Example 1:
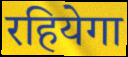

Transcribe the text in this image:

रहियेगा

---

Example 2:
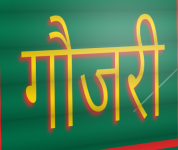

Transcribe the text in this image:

गौजरी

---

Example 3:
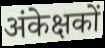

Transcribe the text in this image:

अंकेक्षकों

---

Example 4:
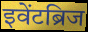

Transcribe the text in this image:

इवेंटब्रिज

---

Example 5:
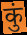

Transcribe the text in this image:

कुं